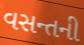
વસન્તની